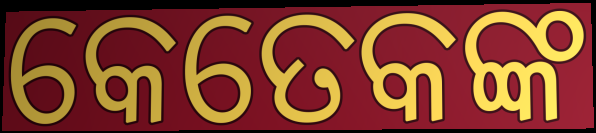
କେତେକଙ୍କ